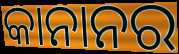
କାନାନର